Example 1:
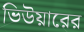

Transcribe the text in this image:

ভিউয়ারের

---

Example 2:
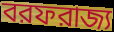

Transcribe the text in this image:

বরফরাজ্য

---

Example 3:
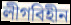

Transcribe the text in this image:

লীগবিহীন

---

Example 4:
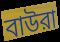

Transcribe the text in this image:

বাউরা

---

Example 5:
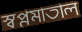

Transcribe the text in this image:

স্বপ্নমাতাল